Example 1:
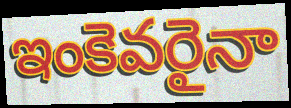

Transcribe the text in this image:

ఇంకెవరైనా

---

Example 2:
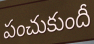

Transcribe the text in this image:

పంచుకుందీ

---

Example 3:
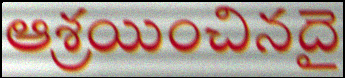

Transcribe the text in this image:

ఆశ్రయించినదై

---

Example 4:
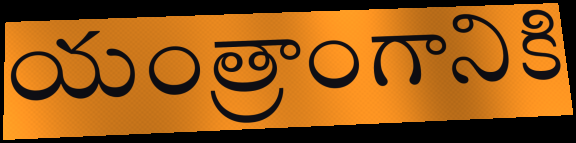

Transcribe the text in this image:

యంత్రాంగానికి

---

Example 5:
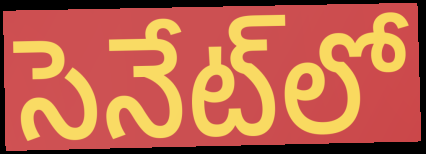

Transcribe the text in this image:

సెనేట్‌లో